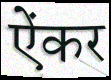
ऐंकर